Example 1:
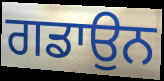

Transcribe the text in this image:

ਗਡਾਉਨ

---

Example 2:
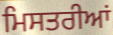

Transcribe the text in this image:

ਮਿਸਤਰੀਆਂ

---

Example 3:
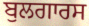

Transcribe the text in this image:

ਬੁਲਗਾਰਸ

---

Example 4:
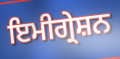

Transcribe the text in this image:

ਇਮੀਗ੍ਰੇਸ਼ਨ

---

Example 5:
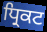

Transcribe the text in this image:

ਧ੍ਰਿਕਟ